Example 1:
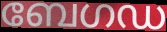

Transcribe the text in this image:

ബേഗഡ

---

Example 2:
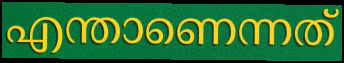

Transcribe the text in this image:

എന്താണെന്നത്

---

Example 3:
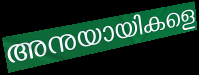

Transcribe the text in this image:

അനുയായികളെ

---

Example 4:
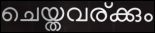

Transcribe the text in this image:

ചെയ്തവര്ക്കും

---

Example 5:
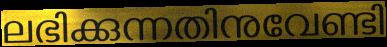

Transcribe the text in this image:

ലഭിക്കുന്നതിനുവേണ്ടി